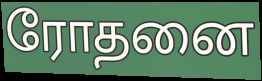
ரோதனை